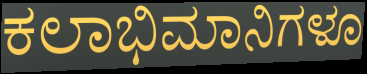
ಕಲಾಭಿಮಾನಿಗಳೂ